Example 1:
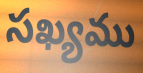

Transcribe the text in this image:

సఖ్యము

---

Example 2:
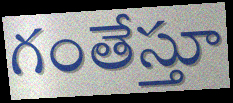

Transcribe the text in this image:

గంతేస్తూ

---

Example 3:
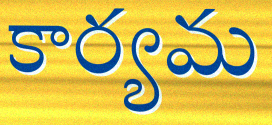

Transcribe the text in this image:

కార్యమ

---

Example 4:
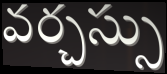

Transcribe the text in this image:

వర్చస్సు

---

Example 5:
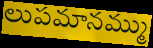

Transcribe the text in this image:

లుపమానమ్ము